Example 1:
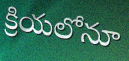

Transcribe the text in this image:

క్రియలోనూ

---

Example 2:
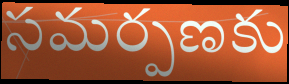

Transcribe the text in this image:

సమర్పణకు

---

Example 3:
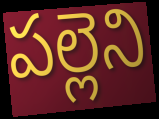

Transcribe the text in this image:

పల్లెని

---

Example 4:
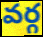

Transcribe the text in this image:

వర్గ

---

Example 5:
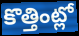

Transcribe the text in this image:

కొత్తింట్లో